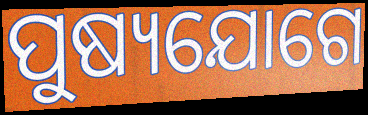
ପୁଷ୍ୟଯୋଗେ